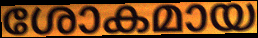
ശോകമായ